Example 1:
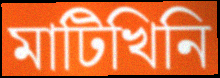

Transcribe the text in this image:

মাটিখিনি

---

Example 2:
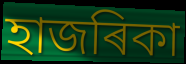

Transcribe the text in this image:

হাজৰিকা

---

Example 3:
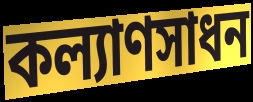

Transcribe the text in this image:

কল্যাণসাধন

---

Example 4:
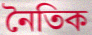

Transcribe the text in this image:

নৈতিক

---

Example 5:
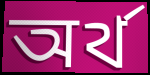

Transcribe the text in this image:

অৰ্থ